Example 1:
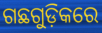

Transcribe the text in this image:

ଗଛଗୁଡ଼ିକରେ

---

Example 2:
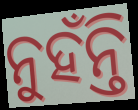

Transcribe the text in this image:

ନୁହଁନ୍ତି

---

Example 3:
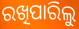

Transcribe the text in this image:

ରଖିପାରିଲୁ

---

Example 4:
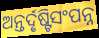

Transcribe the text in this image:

ଅନ୍ତର୍ଦୃଷ୍ଟିସଂପନ୍ନ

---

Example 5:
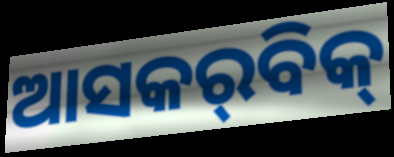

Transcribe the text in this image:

ଆସକର୍‌ବିକ୍